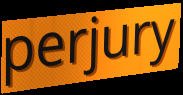
perjury